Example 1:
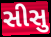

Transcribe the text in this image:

સીસુ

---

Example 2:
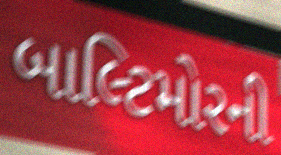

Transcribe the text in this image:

બાલ્ટિમોરની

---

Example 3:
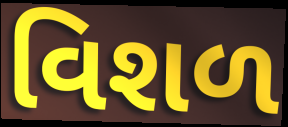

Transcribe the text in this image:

વિશળ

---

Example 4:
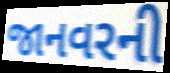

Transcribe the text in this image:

જાનવરની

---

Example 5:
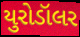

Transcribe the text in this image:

યુરોડૉલર